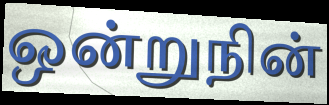
ஒன்றுநின்